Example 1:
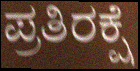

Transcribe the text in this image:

ಪ್ರತಿರಕ್ಷೆ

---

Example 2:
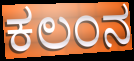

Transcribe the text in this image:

ಕಲಂನ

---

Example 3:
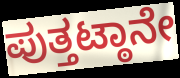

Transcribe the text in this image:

ಪುತ್ತಟ್ಠಾನೇ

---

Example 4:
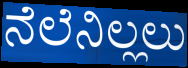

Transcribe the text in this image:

ನೆಲೆನಿಲ್ಲಲು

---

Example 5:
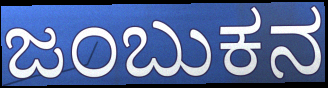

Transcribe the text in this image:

ಜಂಬುಕನ